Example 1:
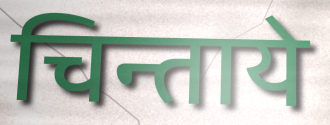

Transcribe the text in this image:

चिन्ताये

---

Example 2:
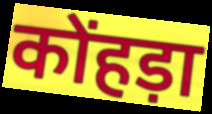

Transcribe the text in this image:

कोंहड़ा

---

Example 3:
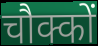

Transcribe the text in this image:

चौक्कों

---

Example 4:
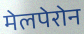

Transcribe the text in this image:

मेलपेरोन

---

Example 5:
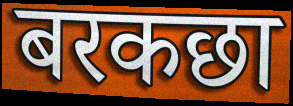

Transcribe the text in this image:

बरकछा